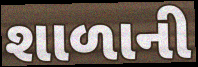
શાળાની